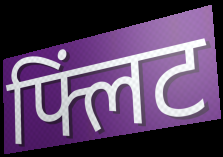
फ्लिंट